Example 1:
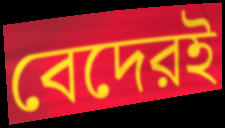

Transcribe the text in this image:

বেদেরই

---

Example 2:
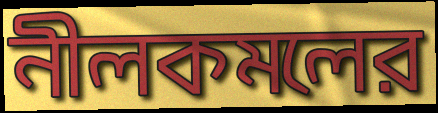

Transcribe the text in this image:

নীলকমলের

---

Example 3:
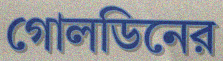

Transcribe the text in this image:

গোলডিনের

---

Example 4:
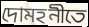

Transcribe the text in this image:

দোমহনীতে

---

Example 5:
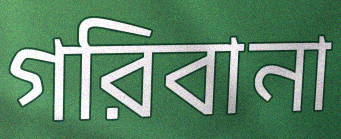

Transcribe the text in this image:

গরিবানা